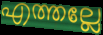
എത്തല്ലേ